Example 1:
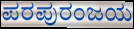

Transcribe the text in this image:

ಪರಪುರಂಜಯ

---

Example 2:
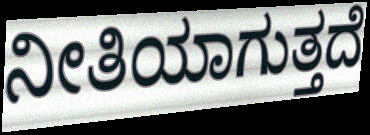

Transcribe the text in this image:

ನೀತಿಯಾಗುತ್ತದೆ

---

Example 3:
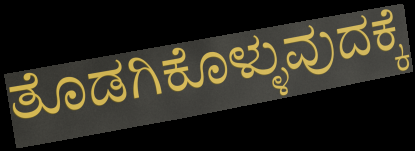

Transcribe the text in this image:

ತೊಡಗಿಕೊಳ್ಳುವುದಕ್ಕೆ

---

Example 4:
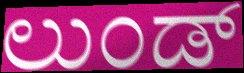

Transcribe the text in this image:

ಲುಂಡ್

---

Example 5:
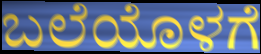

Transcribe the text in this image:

ಬಲೆಯೊಳಗೆ